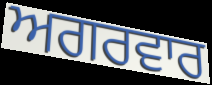
ਅਗਰਵਾਰ